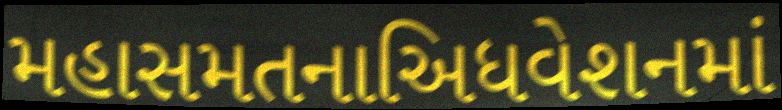
મહાસમતનાઅિધવેશનમાં